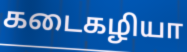
கடைகழியா